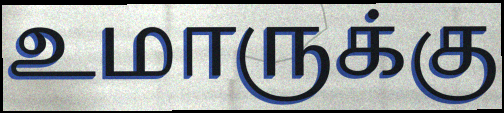
உமாருக்கு